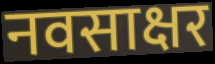
नवसाक्षर